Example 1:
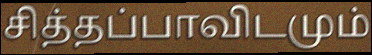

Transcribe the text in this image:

சித்தப்பாவிடமும்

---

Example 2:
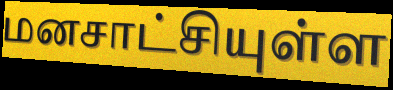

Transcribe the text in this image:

மனசாட்சியுள்ள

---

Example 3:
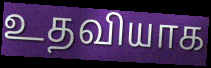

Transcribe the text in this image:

உதவியாக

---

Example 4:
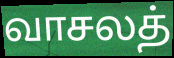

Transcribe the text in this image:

வாசலத்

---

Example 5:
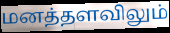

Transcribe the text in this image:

மனத்தளவிலும்